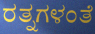
ರತ್ನಗಳಂತೆ